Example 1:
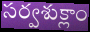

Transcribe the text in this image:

సర్వశుక్లాం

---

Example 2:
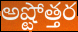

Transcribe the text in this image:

అష్టోత్తర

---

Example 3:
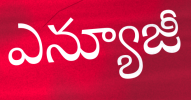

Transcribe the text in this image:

ఎన్యూజీ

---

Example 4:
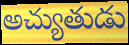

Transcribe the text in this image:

అచ్యుతుడు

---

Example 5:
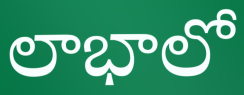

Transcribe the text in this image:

లాభాలో